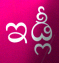
ఇడ్లీ